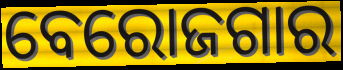
ବେରୋଜଗାର